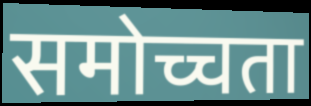
समोच्चता